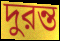
দুরন্ত